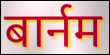
बार्नम